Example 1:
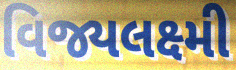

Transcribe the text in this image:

વિજ્યલક્ષ્મી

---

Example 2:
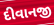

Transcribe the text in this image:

દીવાનજી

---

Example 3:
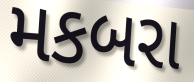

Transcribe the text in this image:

મકબરા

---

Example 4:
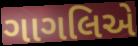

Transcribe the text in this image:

ગાગલિએ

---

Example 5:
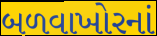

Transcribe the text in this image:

બળવાખોરનાં